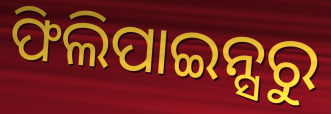
ଫିଲିପାଇନ୍ସରୁ